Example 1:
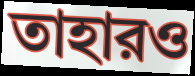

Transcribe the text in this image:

তাহারও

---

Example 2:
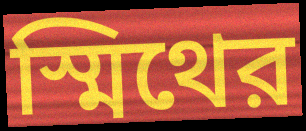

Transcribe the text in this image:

স্মিথের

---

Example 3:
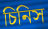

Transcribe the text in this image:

চিনিস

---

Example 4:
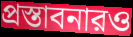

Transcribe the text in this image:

প্রস্তাবনারও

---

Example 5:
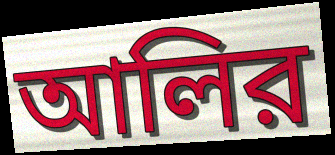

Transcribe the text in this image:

আলির